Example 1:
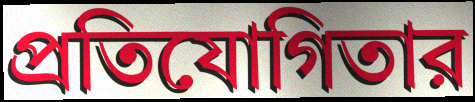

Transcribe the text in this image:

প্রতিযোগিতার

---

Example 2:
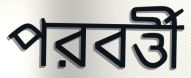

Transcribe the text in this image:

পরবর্ত্তী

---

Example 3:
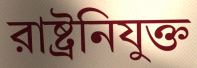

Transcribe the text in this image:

রাষ্ট্রনিযুক্ত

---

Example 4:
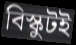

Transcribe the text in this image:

বিস্কুটই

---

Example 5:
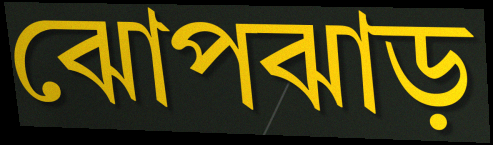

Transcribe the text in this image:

ঝোপঝাড়